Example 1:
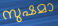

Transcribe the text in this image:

സുഷമാ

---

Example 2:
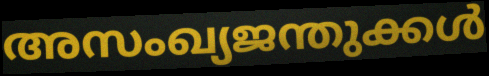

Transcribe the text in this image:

അസംഖ്യജന്തുക്കൾ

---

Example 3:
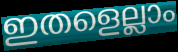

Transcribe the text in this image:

ഇതളെല്ലാം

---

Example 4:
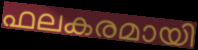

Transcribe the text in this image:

ഫലകരമായി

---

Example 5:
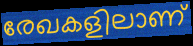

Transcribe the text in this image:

രേഖകളിലാണ്